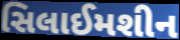
સિલાઈમશીન